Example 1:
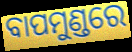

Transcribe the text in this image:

ବାପମୁଣ୍ଡରେ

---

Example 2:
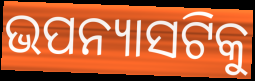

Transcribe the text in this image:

ଭପନ୍ୟାସଟିକୁ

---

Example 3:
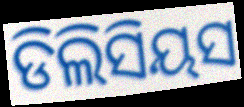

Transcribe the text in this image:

ଡିଲିସିୟସ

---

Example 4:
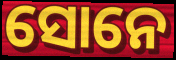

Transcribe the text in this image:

ସୋନେ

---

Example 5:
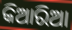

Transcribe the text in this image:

କିଆରିଆ